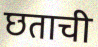
छताची